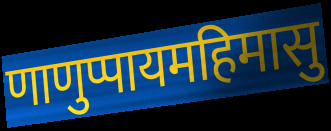
णाणुप्पायमहिमासु